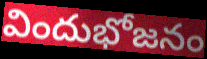
విందుభోజనం